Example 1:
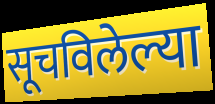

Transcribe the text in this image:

सूचविलेल्या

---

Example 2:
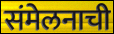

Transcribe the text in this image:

संमेलनाची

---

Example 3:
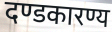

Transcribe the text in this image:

दण्डकारण्य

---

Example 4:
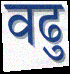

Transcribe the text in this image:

वढु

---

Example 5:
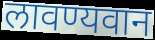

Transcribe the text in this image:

लावण्यवान